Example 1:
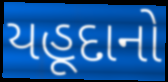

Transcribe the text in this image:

યહૂદાનો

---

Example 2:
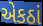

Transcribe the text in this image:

એકઠાં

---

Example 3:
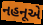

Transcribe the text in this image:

નહનૂએ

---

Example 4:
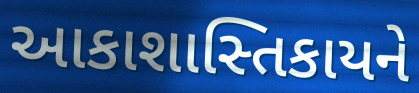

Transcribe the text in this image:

આકાશાસ્તિકાયને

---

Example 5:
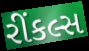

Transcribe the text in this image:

રીંકલ્સ